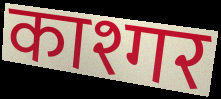
काश्गर